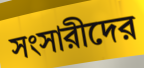
সংসারীদের